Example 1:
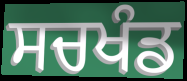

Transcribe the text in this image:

ਸਚਖੰਡ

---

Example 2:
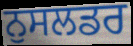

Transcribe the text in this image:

ਨੁਸਲਡਰ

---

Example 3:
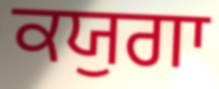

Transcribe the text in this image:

ਕਯੁਗਾ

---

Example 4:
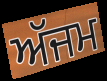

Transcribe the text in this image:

ਅੱਜਮ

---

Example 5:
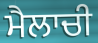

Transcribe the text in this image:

ਮੈਲਾਚੀ